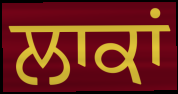
ਲਾਕਾਂ